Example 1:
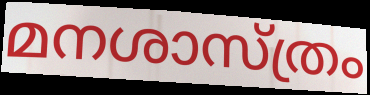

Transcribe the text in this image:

മനശാസ്ത്രം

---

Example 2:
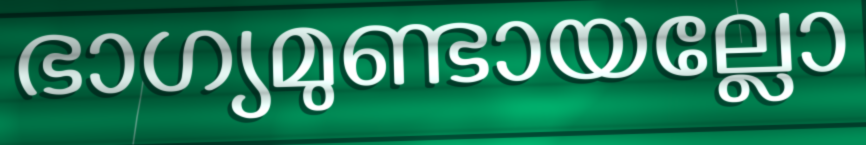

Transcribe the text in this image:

ഭാഗ്യമുണ്ടായല്ലോ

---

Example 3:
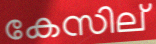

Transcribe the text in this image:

കേസില്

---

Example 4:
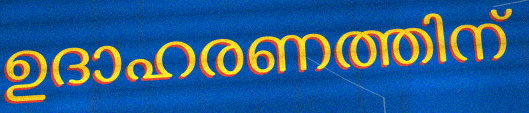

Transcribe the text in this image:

ഉദാഹരണത്തിന്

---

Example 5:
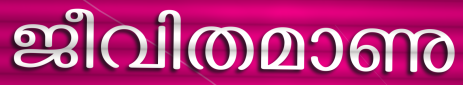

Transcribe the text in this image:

ജീവിതമാണു